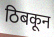
ठिबकून